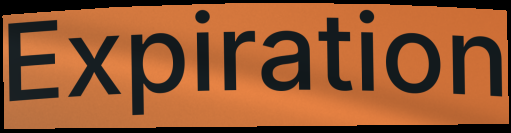
Expiration